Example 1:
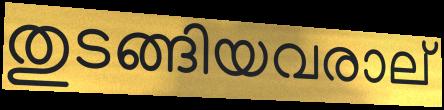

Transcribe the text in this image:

തുടങ്ങിയവരാല്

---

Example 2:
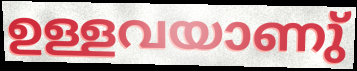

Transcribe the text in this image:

ഉള്ളവയാണു്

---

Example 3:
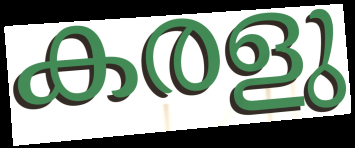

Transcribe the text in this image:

കരളു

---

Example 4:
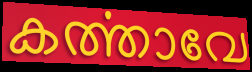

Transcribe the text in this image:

കൎത്താവേ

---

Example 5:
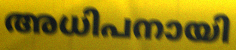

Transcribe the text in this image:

അധിപനായി